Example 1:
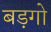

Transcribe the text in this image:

बड़गो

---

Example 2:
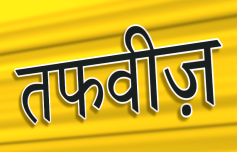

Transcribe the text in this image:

तफवीज़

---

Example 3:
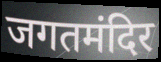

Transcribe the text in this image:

जगतमंदिर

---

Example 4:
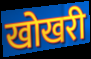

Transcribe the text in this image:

खोखरी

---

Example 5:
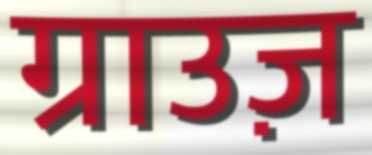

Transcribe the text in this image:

ग्राउज़